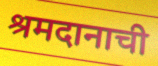
श्रमदानाची